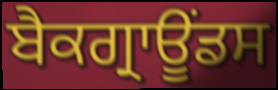
ਬੈਕਗ੍ਰਾਊਂਡਸ